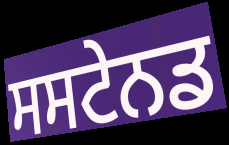
ਸਸਟੇਨਡ